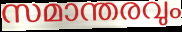
സമാന്തരവും